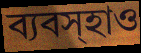
ব্যবস্হাও